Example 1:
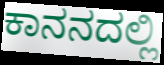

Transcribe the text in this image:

ಕಾನನದಲ್ಲಿ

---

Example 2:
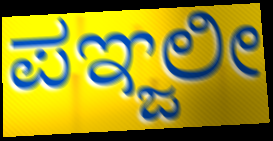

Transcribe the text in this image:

ಪಞ್ಜಲೀ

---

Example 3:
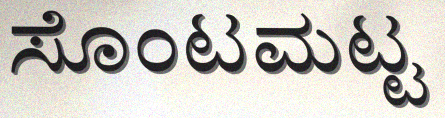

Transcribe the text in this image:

ಸೊಂಟಮಟ್ಟ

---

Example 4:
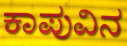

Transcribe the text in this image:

ಕಾಪುವಿನ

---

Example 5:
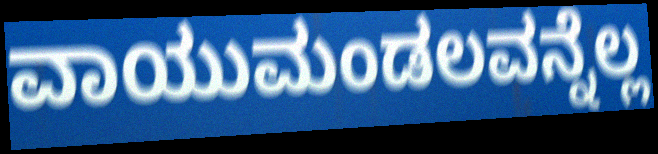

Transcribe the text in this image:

ವಾಯುಮಂಡಲವನ್ನೆಲ್ಲ